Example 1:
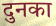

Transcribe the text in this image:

दुनका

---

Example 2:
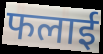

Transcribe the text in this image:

फलाई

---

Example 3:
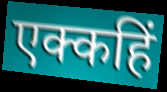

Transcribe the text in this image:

एक्कहिं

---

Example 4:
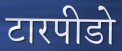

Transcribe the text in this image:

टारपीडो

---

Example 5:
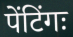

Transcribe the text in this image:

पेंटिंगः